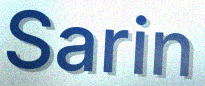
Sarin